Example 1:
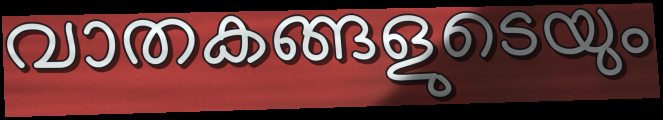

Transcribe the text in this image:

വാതകങ്ങളുടെയും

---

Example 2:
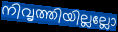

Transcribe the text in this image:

നിവൃത്തിയില്ലല്ലോ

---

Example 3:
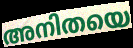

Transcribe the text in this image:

അനിതയെ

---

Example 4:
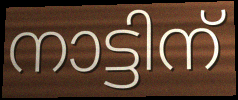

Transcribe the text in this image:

നാട്ടിന്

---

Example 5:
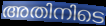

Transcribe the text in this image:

അതിനിടെ